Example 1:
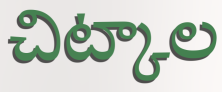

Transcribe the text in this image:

చిట్కాల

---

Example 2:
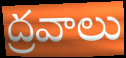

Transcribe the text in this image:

ద్రవాలు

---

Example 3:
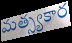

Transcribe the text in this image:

మత్స్యకార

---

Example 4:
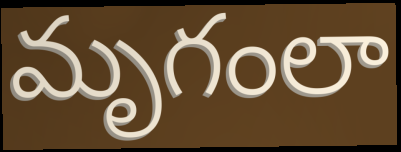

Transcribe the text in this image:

మృగంలా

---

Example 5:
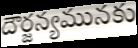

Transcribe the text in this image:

దౌర్జన్యమునకు